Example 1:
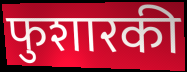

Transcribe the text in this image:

फुशारकी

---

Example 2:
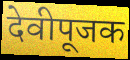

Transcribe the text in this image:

देवीपूजक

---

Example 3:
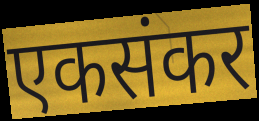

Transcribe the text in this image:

एकसंकर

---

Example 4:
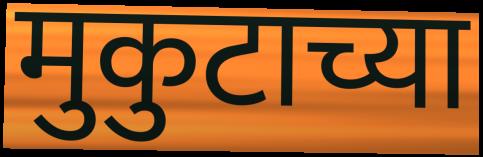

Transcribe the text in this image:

मुकुटाच्या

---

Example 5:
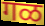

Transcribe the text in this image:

गळ